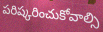
పరిష్కరించుకోవాల్సి